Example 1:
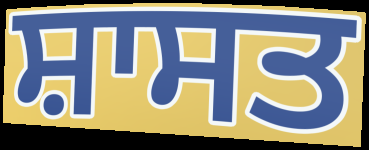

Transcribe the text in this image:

ਸ਼ਾਸਤ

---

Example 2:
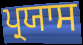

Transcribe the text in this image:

ਪ੍ਰਯਾਸ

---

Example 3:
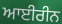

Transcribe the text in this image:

ਆਈਰੀਨ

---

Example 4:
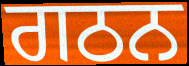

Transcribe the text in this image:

ਗਠਨ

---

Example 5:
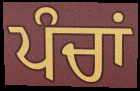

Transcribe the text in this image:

ਪੰਚਾਂ